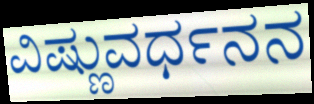
ವಿಷ್ಣುವರ್ಧನನ